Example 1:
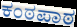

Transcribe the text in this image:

ಕಂಠಪಾಠ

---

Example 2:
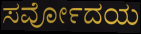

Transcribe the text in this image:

ಸರ್ವೋದಯ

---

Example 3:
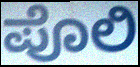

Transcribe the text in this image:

ಪೊಲಿ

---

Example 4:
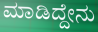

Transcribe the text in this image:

ಮಾಡಿದ್ದೇನು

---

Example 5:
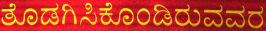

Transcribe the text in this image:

ತೊಡಗಿಸಿಕೊಂಡಿರುವವರ